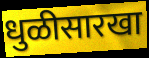
धुळीसारखा